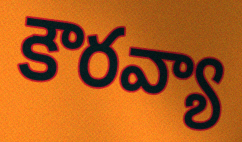
కౌరవ్యా